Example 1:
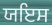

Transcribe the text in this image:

ਯਇਸ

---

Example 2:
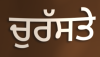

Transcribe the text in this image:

ਚੁਰੱਸਤੇ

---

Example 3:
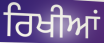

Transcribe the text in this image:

ਰਿਖੀਆਂ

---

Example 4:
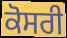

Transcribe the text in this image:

ਕੋਸਰੀ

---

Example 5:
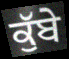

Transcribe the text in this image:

ਕੁੱਬੇ